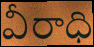
వీరాధి